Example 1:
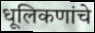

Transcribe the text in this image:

धूलिकणांचे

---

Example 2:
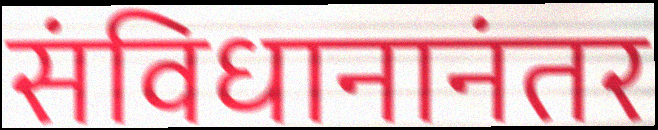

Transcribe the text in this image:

संविधानानंतर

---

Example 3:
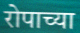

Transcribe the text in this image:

रोपाच्या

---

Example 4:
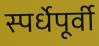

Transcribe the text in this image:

स्पर्धेपूर्वी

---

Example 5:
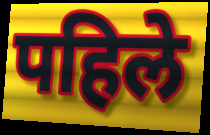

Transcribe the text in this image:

पहिले